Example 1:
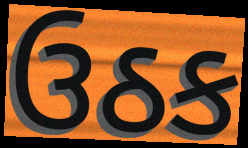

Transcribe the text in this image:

ઉઠક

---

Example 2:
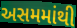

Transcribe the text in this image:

અસમમાંથી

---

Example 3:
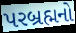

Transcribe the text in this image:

પરબ્રહ્મનો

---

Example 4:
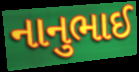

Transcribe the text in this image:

નાનુભાઈ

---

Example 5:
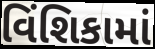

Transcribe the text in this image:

વિંશિકામાં